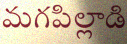
మగపిల్లాడి